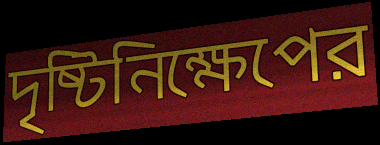
দৃষ্টিনিক্ষেপের